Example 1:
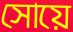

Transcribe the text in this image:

সোয়ে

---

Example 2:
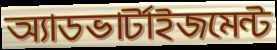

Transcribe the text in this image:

অ্যাডভার্টাইজমেন্ট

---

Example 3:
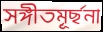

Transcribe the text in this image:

সঙ্গীতমূর্ছনা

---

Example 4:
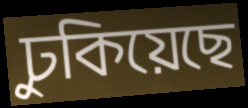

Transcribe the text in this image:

ঢুকিয়েছে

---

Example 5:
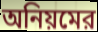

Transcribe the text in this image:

অনিয়মের